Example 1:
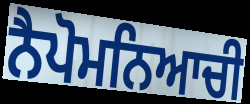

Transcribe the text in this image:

ਨੈਪੋਮਨਿਆਚੀ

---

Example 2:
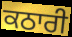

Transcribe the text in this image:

ਕਠਾਰੀ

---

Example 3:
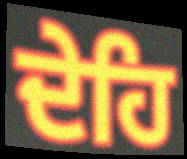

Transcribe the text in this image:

ਦੇਹਿ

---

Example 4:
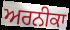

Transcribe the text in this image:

ਅਰਨੀਕਾ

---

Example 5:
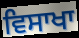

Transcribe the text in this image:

ਵਿਸਾਖਾ